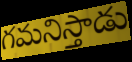
గమనిస్తాడు